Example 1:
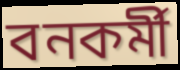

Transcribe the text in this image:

বনকর্মী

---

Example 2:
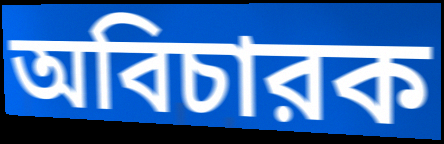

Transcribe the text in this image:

অবিচারক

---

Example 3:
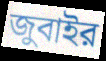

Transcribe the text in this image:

জুবাইর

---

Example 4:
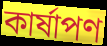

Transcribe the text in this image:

কার্ষাপণ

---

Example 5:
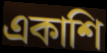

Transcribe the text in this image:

একাশি